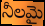
నీలమై